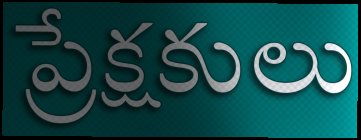
ప్రేక్షకులు